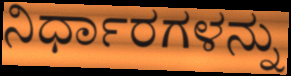
ನಿರ್ಧಾರಗಳನ್ನು